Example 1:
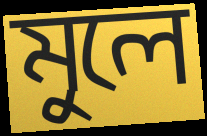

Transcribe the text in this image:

মুলে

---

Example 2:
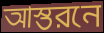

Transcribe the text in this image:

আস্তরনে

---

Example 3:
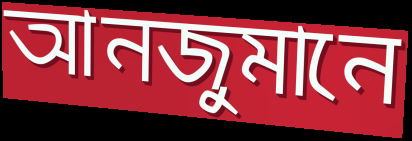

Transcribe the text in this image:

আনজুমানে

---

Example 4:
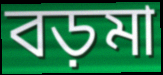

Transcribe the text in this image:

বড়মা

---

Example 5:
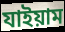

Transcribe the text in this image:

যাইয়াম